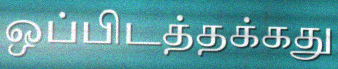
ஒப்பிடத்தக்கது